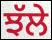
ਝੱਲੇ